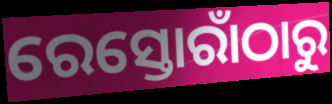
ରେସ୍ତୋରାଁଠାରୁ